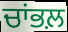
ਚਾਂਭਲ਼